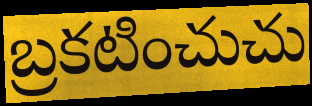
బ్రకటించుచు